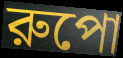
রুপো